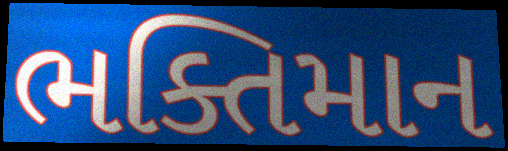
ભક્તિમાન